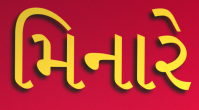
મિનારે